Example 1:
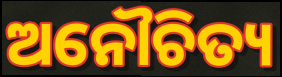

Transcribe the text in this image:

ଅନୌଚିତ୍ୟ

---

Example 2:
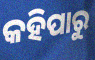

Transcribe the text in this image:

କହିପାରୁ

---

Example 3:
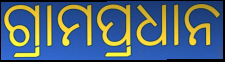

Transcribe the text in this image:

ଗ୍ରାମପ୍ରଧାନ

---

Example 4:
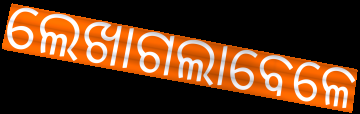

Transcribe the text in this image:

ଲେଖାଗଲାବେଳେ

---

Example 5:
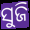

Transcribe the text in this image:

ସୁଜି